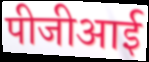
पीजीआई